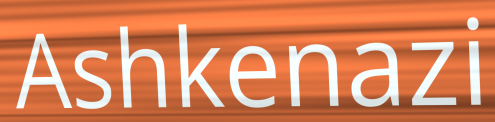
Ashkenazi